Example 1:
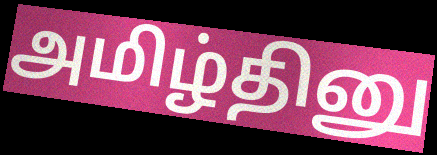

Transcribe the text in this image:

அமிழ்தினு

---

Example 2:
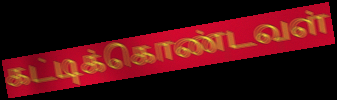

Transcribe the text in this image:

கட்டிக்கொண்டவள்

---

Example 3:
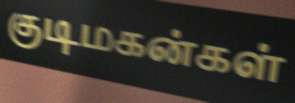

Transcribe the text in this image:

குடிமகன்கள்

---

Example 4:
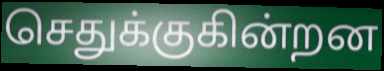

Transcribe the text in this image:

செதுக்குகின்றன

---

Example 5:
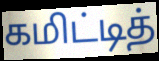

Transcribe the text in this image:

கமிட்டித்